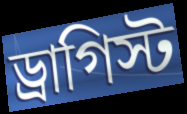
ড্রাগিস্ট